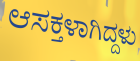
ಆಸಕ್ತಳಾಗಿದ್ದಳು